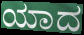
ಯಾದ